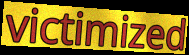
victimized